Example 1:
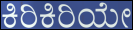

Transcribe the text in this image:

ಕಿರಿಕಿರಿಯೇ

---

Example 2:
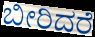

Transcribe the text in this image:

ಬೀರಿದರೆ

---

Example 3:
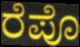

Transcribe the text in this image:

ರೆಪೊ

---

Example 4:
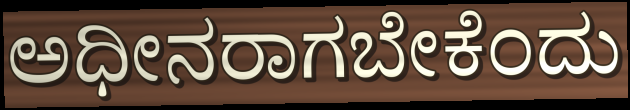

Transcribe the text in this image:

ಅಧೀನರಾಗಬೇಕೆಂದು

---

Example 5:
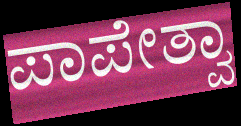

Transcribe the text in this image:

ಪಾಪೇತ್ವಾ